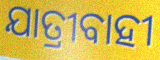
ଯାତ୍ରୀବାହୀ